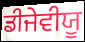
ਡੀਜੇਵੀਯੂ